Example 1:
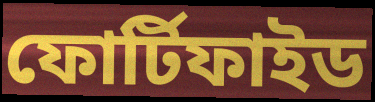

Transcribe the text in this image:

ফোর্টিফাইড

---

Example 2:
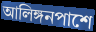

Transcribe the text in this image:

আলিঙ্গনপাশে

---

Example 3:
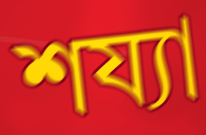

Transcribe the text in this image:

শয্যা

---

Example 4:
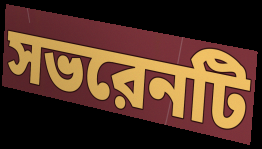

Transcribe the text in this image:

সভরেনটি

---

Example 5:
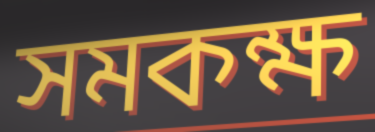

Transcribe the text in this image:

সমকক্ষ